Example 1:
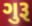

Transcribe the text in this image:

ગુરૂ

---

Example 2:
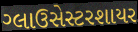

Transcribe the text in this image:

ગ્લાઉસેસ્ટરશાયર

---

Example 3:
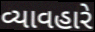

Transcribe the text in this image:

વ્યાવહારે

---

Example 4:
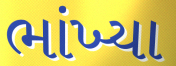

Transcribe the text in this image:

ભાંખ્યા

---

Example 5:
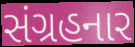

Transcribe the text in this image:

સંગ્રહનાર